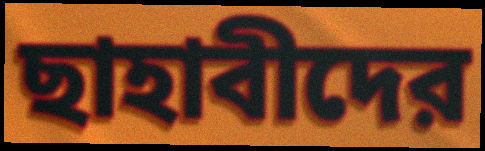
ছাহাবীদের